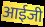
आईजी